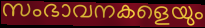
സംഭാവനകളെയും